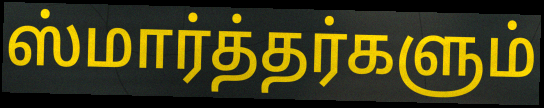
ஸ்மார்த்தர்களும்